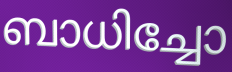
ബാധിച്ചോ